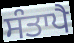
ਸੰਤਾਪੈ